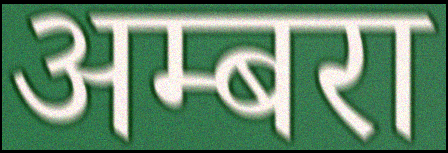
अम्बरा